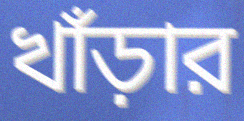
খাঁড়ার